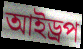
আইড্রপ